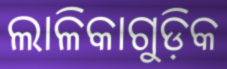
ଲାଳିକାଗୁଡ଼ିକ